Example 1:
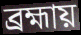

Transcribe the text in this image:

ব্রহ্মায়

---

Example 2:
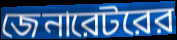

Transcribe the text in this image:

জেনারেটরের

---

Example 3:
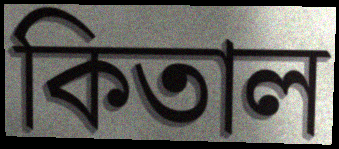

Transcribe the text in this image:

কিতাল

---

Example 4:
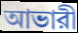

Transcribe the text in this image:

আভারী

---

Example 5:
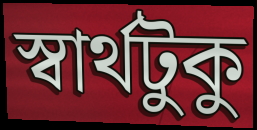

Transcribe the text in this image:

স্বার্থটুকু